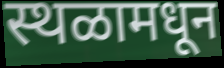
स्थळामधून